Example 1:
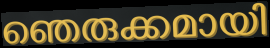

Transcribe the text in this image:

ഞെരുക്കമായി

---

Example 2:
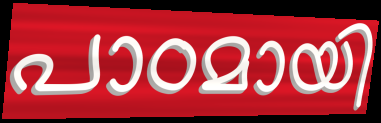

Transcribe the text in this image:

പാഠമായി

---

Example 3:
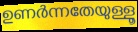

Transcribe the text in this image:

ഉണർന്നതേയുള്ളൂ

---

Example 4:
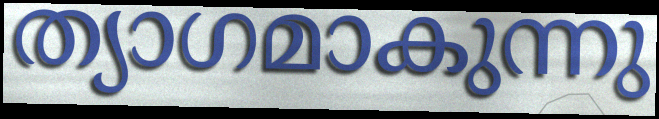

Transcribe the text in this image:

ത്യാഗമാകുന്നു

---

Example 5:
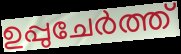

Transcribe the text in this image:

ഉപ്പുചേർത്ത്